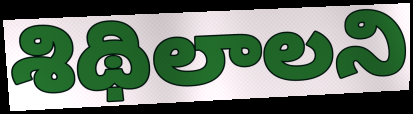
శిథిలాలని